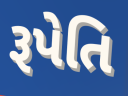
રૂપેતિ